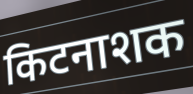
किटनाशक